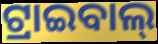
ଟ୍ରାଇବାଲ୍